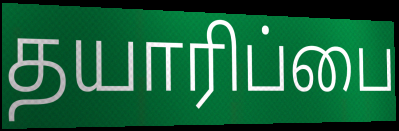
தயாரிப்பை